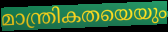
മാന്ത്രികതയെയും